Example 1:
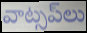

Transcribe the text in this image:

వాట్సప్‌లు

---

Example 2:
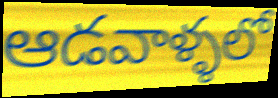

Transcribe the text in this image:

ఆడవాళ్ళలో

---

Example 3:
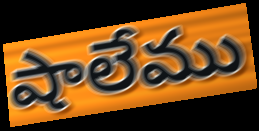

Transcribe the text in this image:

షాలేము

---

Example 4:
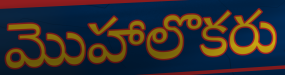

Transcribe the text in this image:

మొహాలొకరు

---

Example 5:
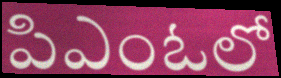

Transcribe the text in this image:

పిఎంఓలో